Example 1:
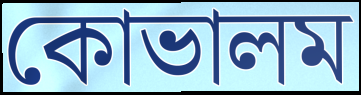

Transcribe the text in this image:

কোভালম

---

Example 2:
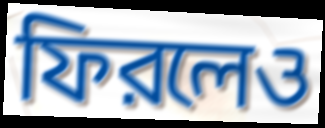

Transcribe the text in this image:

ফিরলেও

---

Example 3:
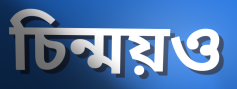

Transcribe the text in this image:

চিন্ময়ও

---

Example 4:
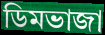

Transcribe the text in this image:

ডিমভাজা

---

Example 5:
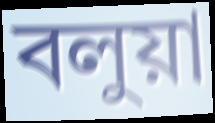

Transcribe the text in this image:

বলুয়া